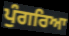
ਪੁੰਗਰਿਆ